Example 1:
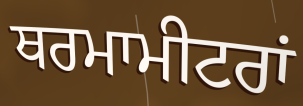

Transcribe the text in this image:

ਥਰਮਾਮੀਟਰਾਂ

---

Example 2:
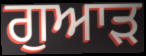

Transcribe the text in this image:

ਗੁਆੜ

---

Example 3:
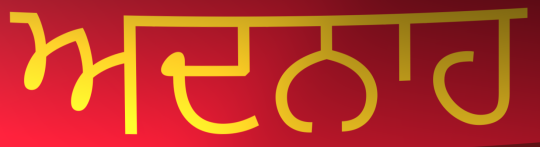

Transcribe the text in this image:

ਅਦਨਾਹ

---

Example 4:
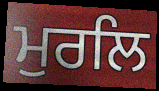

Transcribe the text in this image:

ਮੁਰਲਿ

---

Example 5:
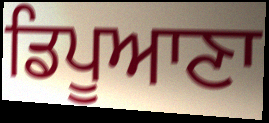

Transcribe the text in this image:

ਡਿਪੂਆਣਾ